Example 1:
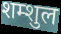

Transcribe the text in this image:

शम्शुल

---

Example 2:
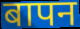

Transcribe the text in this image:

बापन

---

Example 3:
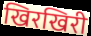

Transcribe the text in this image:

खिरखिरी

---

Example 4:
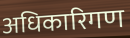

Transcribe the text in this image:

अधिकारिगण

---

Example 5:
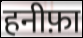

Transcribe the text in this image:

हनीफ़ा